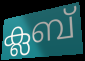
ക്ലബ്